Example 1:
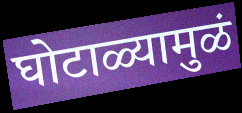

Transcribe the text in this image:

घोटाळ्यामुळं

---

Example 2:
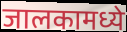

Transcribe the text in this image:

जालकामध्ये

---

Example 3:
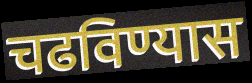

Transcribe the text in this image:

चढविण्यास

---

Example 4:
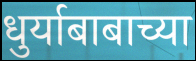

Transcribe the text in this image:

धुर्याबाबाच्या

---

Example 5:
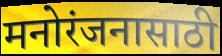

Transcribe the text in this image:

मनोरंजनासाठी